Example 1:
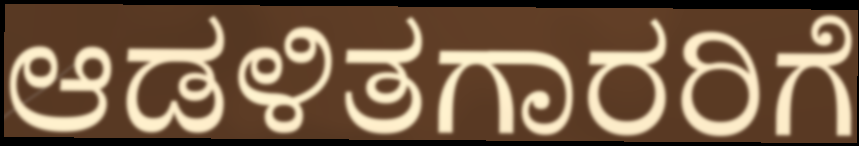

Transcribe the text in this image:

ಆಡಳಿತಗಾರರಿಗೆ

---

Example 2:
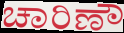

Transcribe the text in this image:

ಚಾರಿಣೌ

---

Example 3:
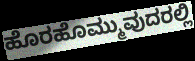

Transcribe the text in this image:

ಹೊರಹೊಮ್ಮುವುದರಲ್ಲಿ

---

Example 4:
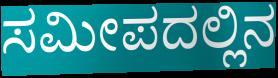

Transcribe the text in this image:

ಸಮೀಪದಲ್ಲಿನ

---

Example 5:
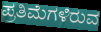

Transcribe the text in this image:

ಪ್ರತಿಮೆಗಳಿರುವ